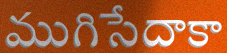
ముగిసేదాకా